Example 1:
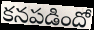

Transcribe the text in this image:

కనపడిందో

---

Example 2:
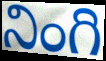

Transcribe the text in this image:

నింగి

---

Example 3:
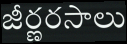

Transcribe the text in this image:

జీర్ణరసాలు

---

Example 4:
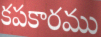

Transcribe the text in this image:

కపకారము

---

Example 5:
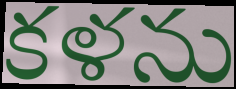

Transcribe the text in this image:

కళను